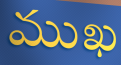
ముఖ